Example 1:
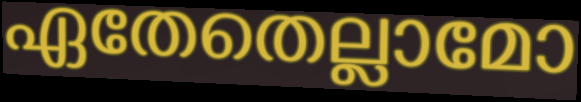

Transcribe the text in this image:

ഏതേതെല്ലാമോ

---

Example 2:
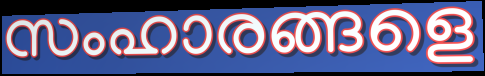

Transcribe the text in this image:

സംഹാരങ്ങളെ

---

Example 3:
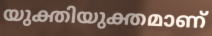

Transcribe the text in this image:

യുക്തിയുക്തമാണ്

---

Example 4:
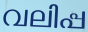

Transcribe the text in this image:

വലിപ്പ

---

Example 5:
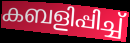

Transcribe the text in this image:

കബളിപ്പിച്ച്